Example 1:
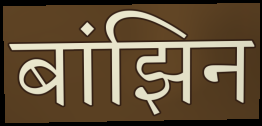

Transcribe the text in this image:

बांझिन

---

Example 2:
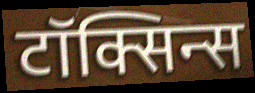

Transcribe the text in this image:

टॉक्सिन्स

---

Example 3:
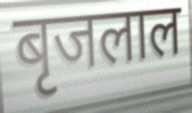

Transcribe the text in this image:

बृजलाल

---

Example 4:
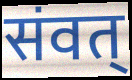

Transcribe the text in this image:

संवत्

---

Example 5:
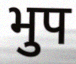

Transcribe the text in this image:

भुप